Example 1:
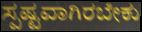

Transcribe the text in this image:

ಸ್ಪಷ್ಟವಾಗಿರಬೇಕು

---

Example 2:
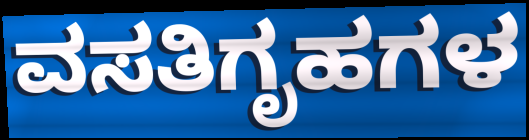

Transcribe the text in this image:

ವಸತಿಗೃಹಗಳ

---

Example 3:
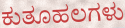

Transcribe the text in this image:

ಕುತೂಹಲಗಳು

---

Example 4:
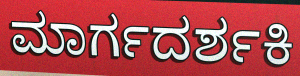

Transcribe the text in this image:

ಮಾರ್ಗದರ್ಶಕಿ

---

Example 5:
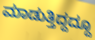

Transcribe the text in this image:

ಮಾಡುತ್ತಿದ್ದದ್ದೂ